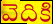
వెదికి